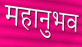
महानुभव